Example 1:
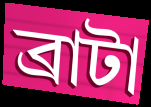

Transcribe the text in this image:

ব্রাটা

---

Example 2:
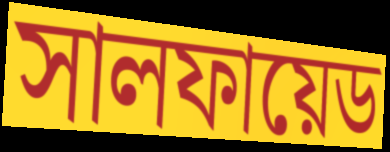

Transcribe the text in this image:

সালফায়েড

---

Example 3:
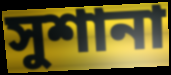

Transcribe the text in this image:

সুশানা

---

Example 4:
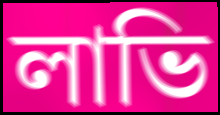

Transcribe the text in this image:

লাভি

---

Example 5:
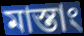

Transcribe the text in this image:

মাস্তাং